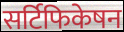
सर्टिफिकेषन